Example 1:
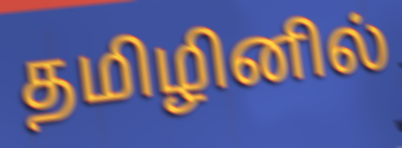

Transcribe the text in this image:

தமிழினில்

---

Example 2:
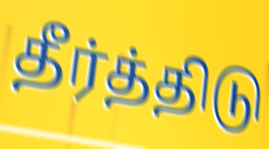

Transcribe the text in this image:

தீர்த்திடு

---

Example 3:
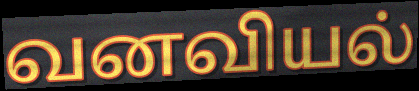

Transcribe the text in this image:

வனவியல்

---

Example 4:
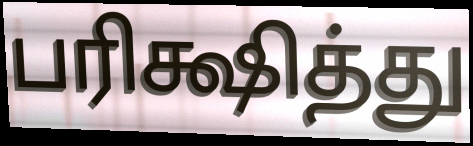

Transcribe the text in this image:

பரிக்ஷித்து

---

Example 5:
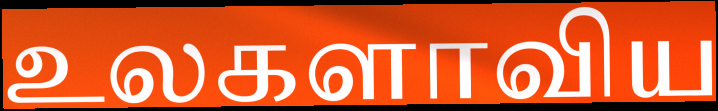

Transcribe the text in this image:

உலகளாவிய